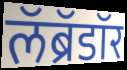
लॅब्रॅडॉर